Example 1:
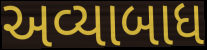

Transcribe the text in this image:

અવ્યાબાધ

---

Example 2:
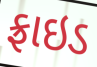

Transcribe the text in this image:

ફ્રાઇડ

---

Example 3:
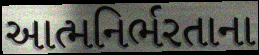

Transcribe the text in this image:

આત્મનિર્ભરતાના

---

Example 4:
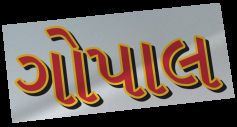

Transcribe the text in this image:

ગોપાલ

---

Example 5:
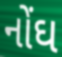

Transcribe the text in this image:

નોંઘ